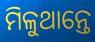
ମିଳୁଥାନ୍ତେ